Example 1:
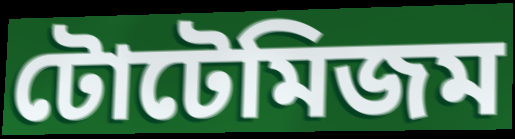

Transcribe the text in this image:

টোটেমিজম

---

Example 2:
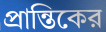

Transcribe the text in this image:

প্রান্তিকের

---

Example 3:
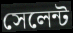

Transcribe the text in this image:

সেলেন্ট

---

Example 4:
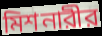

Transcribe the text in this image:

মিশনারীর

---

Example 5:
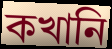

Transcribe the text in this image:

কখানি